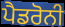
ਪੈਡਰੋਨੀ